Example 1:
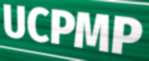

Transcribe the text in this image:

UCPMP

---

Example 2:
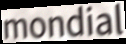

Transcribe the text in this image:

mondial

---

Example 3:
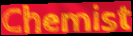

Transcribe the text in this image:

Chemist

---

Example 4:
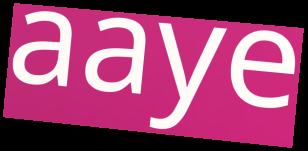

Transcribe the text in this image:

aaye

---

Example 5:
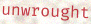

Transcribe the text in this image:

unwrought